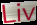
Liv